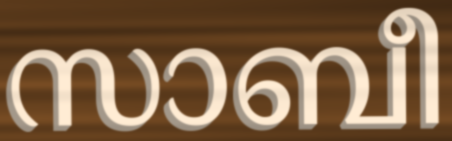
സാബീ